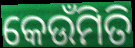
କେଉଁମିତି